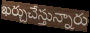
ఖర్చుచేస్తున్నారు